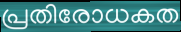
പ്രതിരോധകത